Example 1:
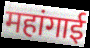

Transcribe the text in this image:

महांगाई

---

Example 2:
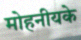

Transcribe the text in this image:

मोहनीयके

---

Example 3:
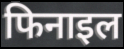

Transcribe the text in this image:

फिनाइल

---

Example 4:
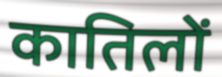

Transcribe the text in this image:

कातिलों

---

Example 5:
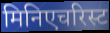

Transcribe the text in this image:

मिनिएचरिस्ट